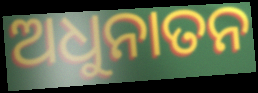
ଅଧୁନାତନ